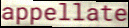
appellate